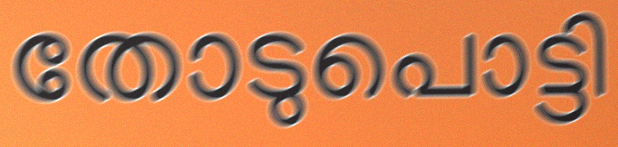
തോടുപൊട്ടി